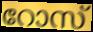
റോസ്